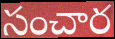
సంచార